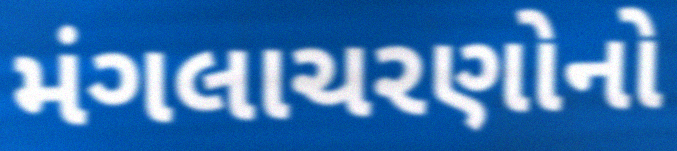
મંગલાચરણોનો